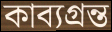
কাব্যগ্রন্ত